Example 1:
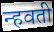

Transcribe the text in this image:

न्हवती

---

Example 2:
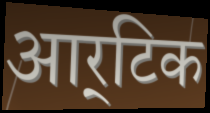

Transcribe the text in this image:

आर्टिक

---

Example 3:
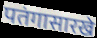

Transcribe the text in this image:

पतंगासारखे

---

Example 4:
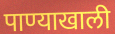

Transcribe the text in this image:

पाण्‍याखाली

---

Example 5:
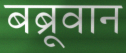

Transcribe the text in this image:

बब्रूवान